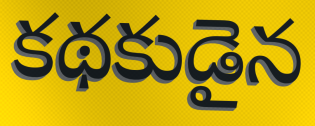
కథకుడైన